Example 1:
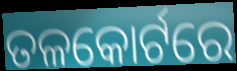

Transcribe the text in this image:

ତଳକୋର୍ଟରେ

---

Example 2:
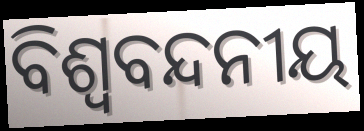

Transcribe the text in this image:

ବିଶ୍ୱବନ୍ଦନୀୟ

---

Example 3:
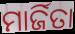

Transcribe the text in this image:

ମାର୍ଜିତା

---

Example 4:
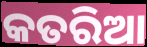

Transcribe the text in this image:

କତରିଆ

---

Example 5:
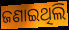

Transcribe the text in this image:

ଜଣାଇଥିଲି